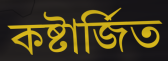
কষ্টার্জিত